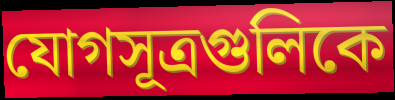
যোগসূত্রগুলিকে